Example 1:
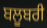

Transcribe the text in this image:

ਬਲੂਬਰੀ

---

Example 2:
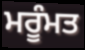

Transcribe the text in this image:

ਮਰੂੰਮਤ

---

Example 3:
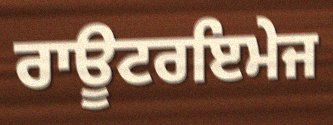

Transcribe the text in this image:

ਰਾਊਟਰਇਮੇਜ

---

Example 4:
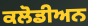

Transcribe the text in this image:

ਕਲੋਡੀਅਨ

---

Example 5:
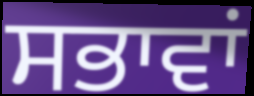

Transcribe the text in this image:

ਸਭਾਵਾਂ